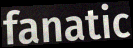
fanatic